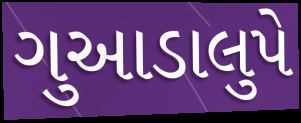
ગુઆડાલુપે